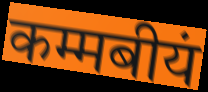
कम्मबीयं